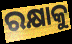
ରକ୍ଷାକୁ